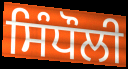
ਸਿੰਧੌਲੀ